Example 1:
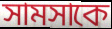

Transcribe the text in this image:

সামসাকে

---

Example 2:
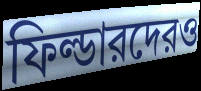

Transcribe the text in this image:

ফিল্ডারদেরও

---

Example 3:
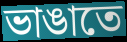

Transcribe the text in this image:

ভাঙাতে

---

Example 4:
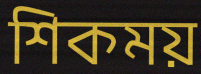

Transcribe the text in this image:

শিকময়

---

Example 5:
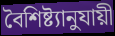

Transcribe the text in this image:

বৈশিষ্ট্যানুযায়ী